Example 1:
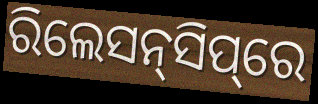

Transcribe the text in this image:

ରିଲେସନ୍‌ସିପ୍‌ରେ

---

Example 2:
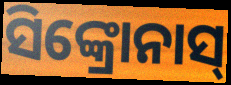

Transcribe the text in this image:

ସିଙ୍କ୍ରୋନାସ୍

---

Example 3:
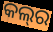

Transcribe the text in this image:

କଲ୍‌ର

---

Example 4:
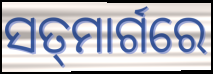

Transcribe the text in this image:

ସତ୍‌ମାର୍ଗରେ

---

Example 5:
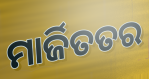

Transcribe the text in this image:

ମାର୍ଜିତତର